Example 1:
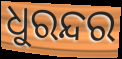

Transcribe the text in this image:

ଧୁରନ୍ଦର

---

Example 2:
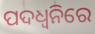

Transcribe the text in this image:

ପଦଧ୍ୱନିରେ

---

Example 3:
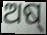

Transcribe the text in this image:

ଅଷ୍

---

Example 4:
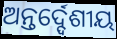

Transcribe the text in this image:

ଅନ୍ତର୍ଦ୍ଦେଶୀୟ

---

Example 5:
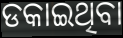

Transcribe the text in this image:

ଡକାଇଥିବା